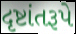
દૃષ્ટાંતરૂપે